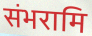
संभरामि